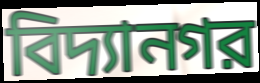
বিদ্যানগর